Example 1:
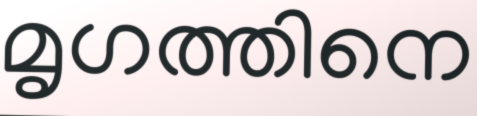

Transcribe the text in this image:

മൃഗത്തിനെ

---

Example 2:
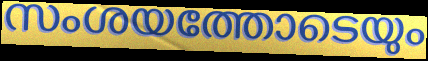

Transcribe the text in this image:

സംശയത്തോടെയും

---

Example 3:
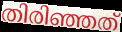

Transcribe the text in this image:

തിരിഞ്ഞത്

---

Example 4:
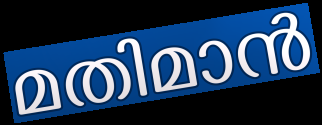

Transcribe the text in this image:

മതിമാൻ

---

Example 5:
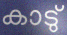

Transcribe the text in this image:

കാടു്